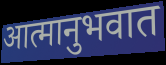
आत्मानुभवात